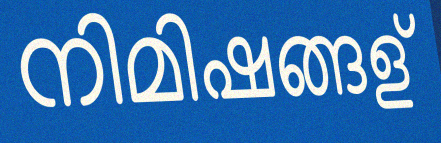
നിമിഷങ്ങള്